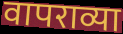
वापराव्या